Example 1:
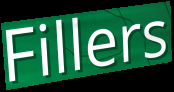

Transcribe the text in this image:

Fillers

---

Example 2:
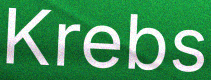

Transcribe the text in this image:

Krebs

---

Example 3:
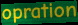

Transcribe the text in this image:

opration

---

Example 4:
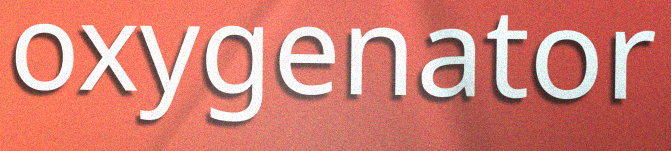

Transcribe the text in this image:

oxygenator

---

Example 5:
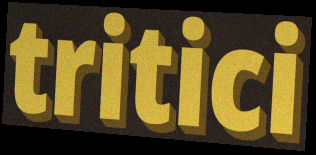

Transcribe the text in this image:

tritici